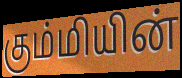
கும்மியின்